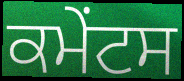
ਕਮੇੰਟਸ